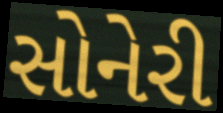
સોનેરી